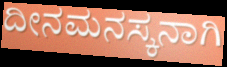
ದೀನಮನಸ್ಕನಾಗಿ